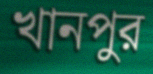
খানপুর